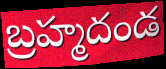
బ్రహ్మదండ